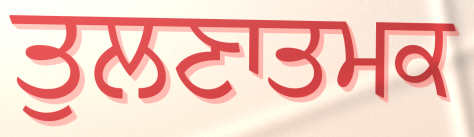
ਤੁਲਣਾਤਮਕ